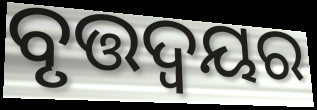
ବୃତ୍ତଦ୍ଵୟର